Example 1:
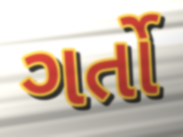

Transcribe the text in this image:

ગર્તો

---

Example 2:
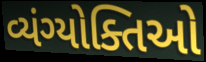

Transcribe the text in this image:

વ્યંગ્યોક્તિઓ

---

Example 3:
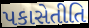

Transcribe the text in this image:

પકાસેતીતિ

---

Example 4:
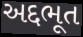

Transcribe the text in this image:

અદ્દભૂત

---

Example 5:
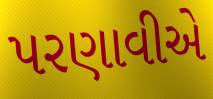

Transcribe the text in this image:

પરણાવીએ